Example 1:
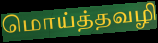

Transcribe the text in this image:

மொய்த்தவழி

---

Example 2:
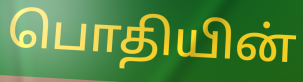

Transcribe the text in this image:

பொதியின்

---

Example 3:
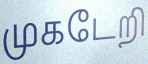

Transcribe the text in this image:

முகடேறி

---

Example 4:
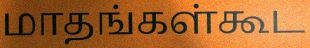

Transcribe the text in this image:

மாதங்கள்கூட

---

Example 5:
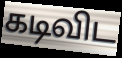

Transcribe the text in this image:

கடிவிட